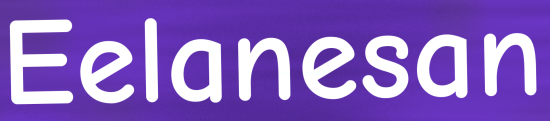
Eelanesan